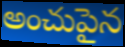
అంచుపైన